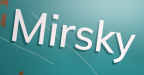
Mirsky